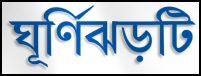
ঘূর্ণিঝড়টি